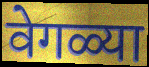
वेगळ्या